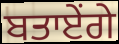
ਬਤਾਏਂਗੇ